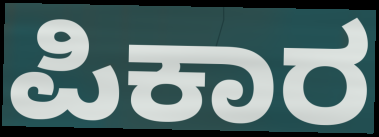
ಪಿಕಾರ